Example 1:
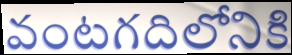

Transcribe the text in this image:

వంటగదిలోనికి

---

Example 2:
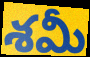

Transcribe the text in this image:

శమీ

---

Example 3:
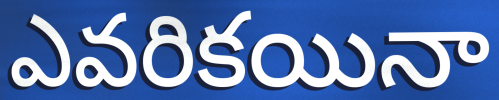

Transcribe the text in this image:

ఎవరికయినా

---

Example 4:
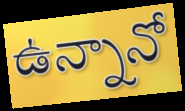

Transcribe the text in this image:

ఉన్నానో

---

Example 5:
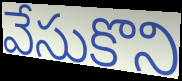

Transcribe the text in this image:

వేసుకొని